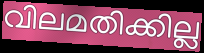
വിലമതിക്കില്ല